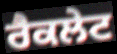
ਰੈਕਲੇਟ